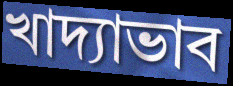
খাদ্যাভাব